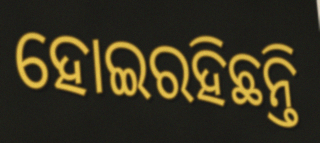
ହୋଇରହିଛନ୍ତି